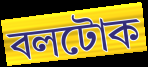
বলটোক